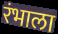
रंभाला